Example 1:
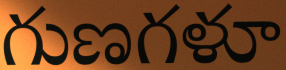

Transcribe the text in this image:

గుణగళూ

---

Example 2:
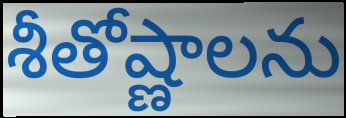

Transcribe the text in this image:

శీతోష్ణాలను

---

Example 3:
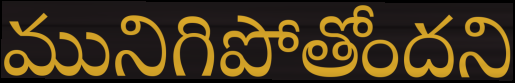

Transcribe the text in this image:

మునిగిపోతోందని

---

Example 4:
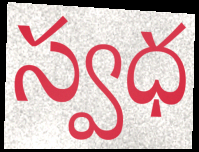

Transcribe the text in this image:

స్వధ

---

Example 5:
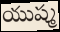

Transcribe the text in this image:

యుష్మ